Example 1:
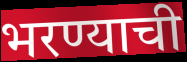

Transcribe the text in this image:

भरण्याची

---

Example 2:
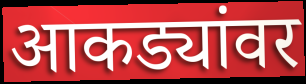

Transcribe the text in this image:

आकड्यांवर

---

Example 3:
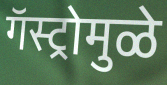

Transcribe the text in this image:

गॅस्ट्रोमुळे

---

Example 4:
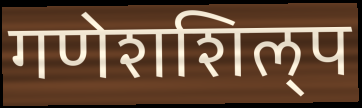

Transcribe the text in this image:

गणेशशिल्प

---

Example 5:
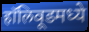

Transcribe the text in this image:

हॉलिवूडमध्ये